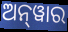
ଅନ୍‌ୱାର